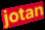
jotan